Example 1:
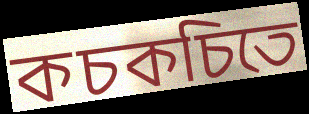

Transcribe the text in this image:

কচকচিতে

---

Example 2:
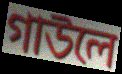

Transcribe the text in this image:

গাউলে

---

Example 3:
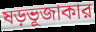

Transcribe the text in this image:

ষড়ভূজাকার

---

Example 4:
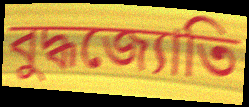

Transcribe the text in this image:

বুদ্ধজ্যোতি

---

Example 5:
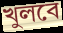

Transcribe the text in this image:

খুলবে